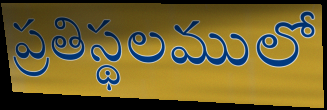
ప్రతిస్థలములో